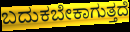
ಬದುಕಬೇಕಾಗುತ್ತದೆ